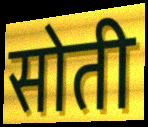
सोती